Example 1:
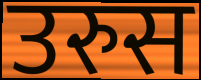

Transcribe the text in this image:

उरुस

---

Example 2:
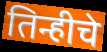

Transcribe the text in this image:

तिन्हीचे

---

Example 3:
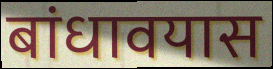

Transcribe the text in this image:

बांधावयास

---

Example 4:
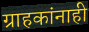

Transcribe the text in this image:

ग्राहकांनाही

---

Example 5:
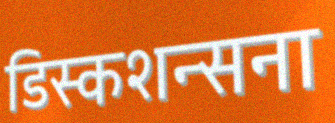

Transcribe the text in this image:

डिस्कशन्सना